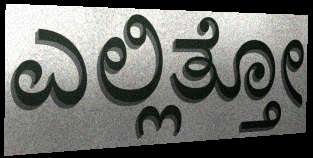
ಎಲ್ಲಿತ್ತೋ